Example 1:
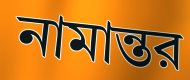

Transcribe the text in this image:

নামান্তর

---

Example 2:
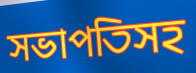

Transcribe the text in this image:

সভাপতিসহ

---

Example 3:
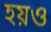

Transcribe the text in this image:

হয়ও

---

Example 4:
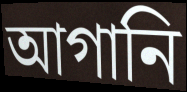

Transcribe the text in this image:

আগানি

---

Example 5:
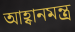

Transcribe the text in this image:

আহ্বানমন্ত্র